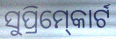
ସୁପ୍ରିମ୍‍କୋର୍ଟ